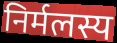
निर्मलस्य